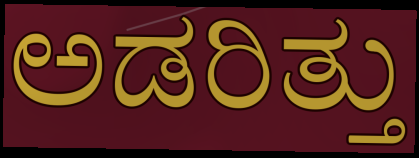
ಅಡರಿತ್ತು